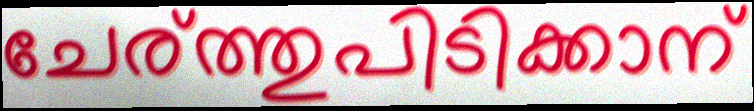
ചേര്ത്തുപിടിക്കാന്